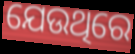
ଯେଉଥିରେ